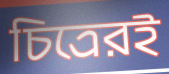
চিত্রেরই